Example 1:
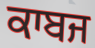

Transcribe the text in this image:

ਕਾਬਜ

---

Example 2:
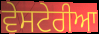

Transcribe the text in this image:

ਵੇਸਟੇਰੀਆ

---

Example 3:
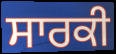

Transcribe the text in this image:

ਸਾਰਕੀ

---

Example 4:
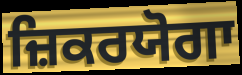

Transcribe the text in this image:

ਜ਼ਿਕਰਯੋਗਾ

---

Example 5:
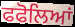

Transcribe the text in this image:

ਫਫੋਲਿਆਂ